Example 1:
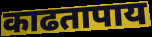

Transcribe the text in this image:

काढतापाय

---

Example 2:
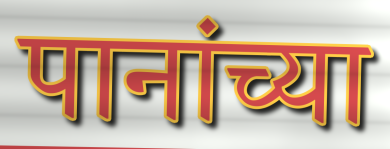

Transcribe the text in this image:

पानांच्या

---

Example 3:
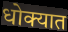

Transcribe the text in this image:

धोक्यात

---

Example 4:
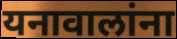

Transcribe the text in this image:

यनावालांना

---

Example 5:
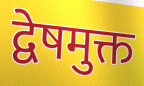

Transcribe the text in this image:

द्वेषमुक्त